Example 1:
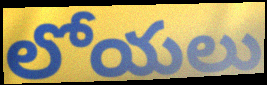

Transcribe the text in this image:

లోయలు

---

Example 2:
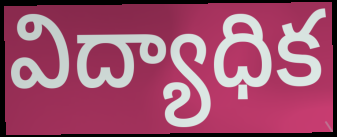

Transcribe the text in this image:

విద్యాధిక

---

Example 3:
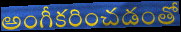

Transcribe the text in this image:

అంగీకరించడంతో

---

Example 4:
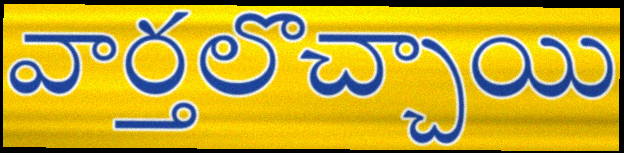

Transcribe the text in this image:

వార్తలొచ్చాయి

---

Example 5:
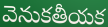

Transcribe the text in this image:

వెనుకతీయక